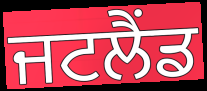
ਜਟਲੈਂਡ